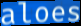
aloes